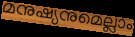
മനുഷ്യനുമെല്ലാം